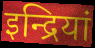
इन्द्रियां